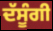
ਦੱਸੂੰਗੀ